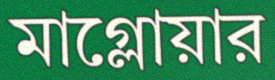
মাগ্লোয়ার